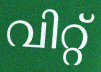
വിറ്റ്